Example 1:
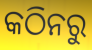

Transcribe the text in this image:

କଠିନରୁ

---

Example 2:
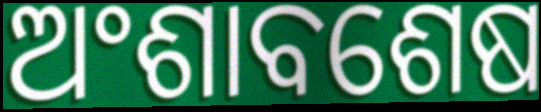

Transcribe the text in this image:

ଅଂଶାବଶେଷ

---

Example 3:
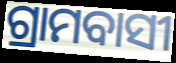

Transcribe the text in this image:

ଗ୍ରାମବାସୀ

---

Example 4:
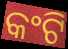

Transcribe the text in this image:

କଂଟି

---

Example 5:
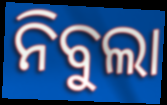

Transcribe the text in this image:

ନିବୁଲା